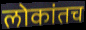
लोकांतच